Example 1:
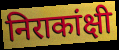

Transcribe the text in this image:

निराकांक्षी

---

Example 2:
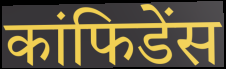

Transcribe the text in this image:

कांफिडेंस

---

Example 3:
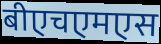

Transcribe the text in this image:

बीएचएमएस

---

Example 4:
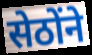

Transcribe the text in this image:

सेठोंने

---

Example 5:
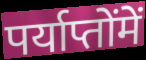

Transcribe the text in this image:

पर्याप्तोंमें